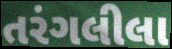
તરંગલીલા